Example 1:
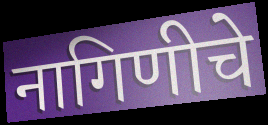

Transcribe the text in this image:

नागिणीचे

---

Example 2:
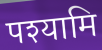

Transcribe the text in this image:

पश्यामि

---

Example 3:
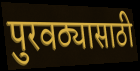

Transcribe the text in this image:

पुरवठ्यासाठी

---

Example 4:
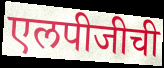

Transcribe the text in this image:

एलपीजीची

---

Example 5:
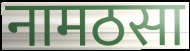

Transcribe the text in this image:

नामठसा